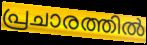
പ്രചാരത്തിൽ